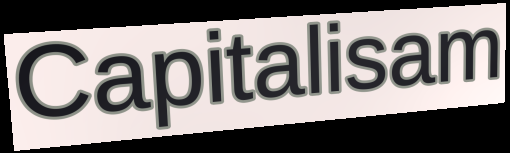
Capitalisam